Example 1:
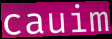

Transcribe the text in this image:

cauim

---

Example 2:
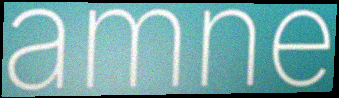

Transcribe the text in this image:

amne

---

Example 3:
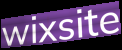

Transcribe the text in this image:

wixsite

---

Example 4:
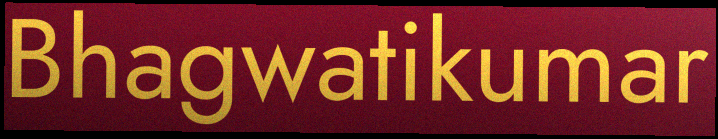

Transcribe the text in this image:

Bhagwatikumar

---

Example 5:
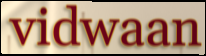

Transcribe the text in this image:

vidwaan